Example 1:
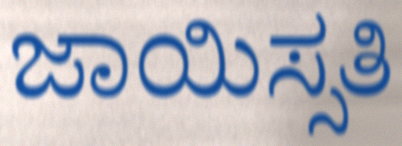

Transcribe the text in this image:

ಜಾಯಿಸ್ಸತಿ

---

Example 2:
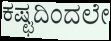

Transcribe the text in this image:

ಕಷ್ಟದಿಂದಲೇ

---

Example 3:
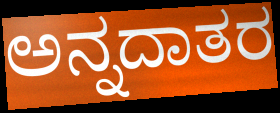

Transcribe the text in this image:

ಅನ್ನದಾತರ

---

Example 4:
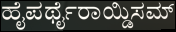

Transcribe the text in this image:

ಹೈಪರ್ಥೈರಾಯ್ಡಿಸಮ್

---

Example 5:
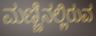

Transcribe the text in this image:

ಮಣ್ಣಿನಲ್ಲಿರುವ